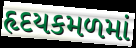
હૃદયકમળમાં